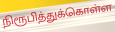
நிரூபித்துக்கொள்ள